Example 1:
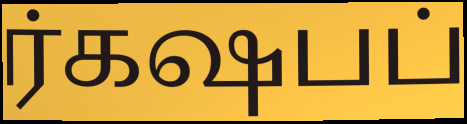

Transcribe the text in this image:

ர்கஷபப்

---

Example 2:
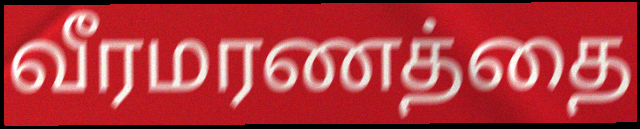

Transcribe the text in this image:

வீரமரணத்தை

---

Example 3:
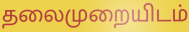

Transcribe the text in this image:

தலைமுறையிடம்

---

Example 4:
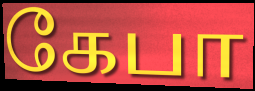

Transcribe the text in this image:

கேபா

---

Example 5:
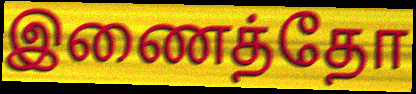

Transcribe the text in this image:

இணைத்தோ